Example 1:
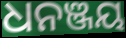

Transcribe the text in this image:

ଧନଞ୍ଜୟ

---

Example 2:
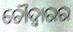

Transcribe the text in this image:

ଚୌଦ୍ୱାରର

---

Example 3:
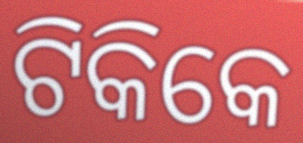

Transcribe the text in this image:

ଟିକିକେ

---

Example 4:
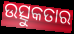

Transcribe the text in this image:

ଉତ୍ସୁକତାର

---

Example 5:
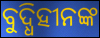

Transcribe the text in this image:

ବୁଦ୍ଧିହୀନଙ୍କ